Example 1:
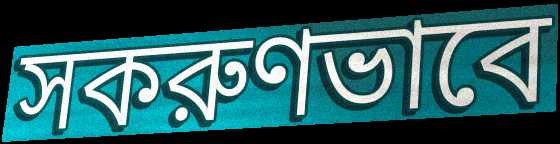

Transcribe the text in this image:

সকরুণভাবে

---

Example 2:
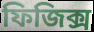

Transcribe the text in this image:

ফিজিক্স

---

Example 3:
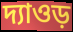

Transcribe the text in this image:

দ্যাওড়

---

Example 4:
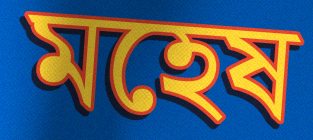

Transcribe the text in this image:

মহেষ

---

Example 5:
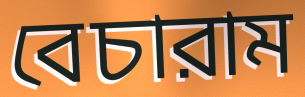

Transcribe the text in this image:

বেচারাম